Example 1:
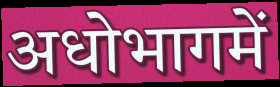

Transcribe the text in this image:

अधोभागमें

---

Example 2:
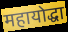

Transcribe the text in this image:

महायोद्धा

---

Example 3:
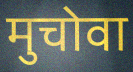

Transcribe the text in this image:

मुचोवा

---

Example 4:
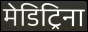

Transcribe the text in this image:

मेडिट्रिना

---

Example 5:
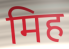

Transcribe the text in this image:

मिह